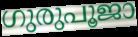
ഗുരുപൂജാ